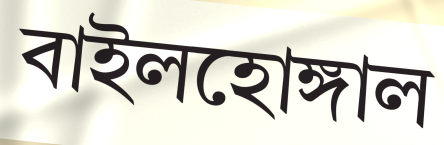
বাইলহোঙ্গাল